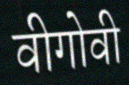
वीगोवी